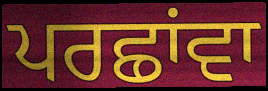
ਪਰਛਾਂਵਾ